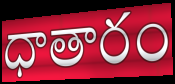
ధాతారం